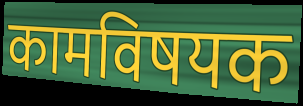
कामविषयक